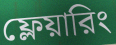
ফ্লেয়ারিং